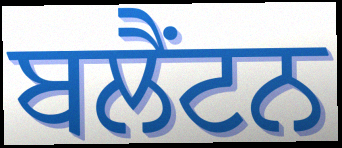
ਬਲੈਂਟਨ